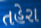
તહેરા